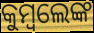
କୁମ୍ବଲେଙ୍କ